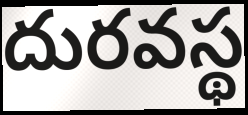
దురవస్థ